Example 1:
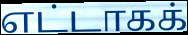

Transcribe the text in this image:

எட்டாகக்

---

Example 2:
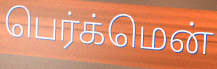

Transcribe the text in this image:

பெர்க்மென்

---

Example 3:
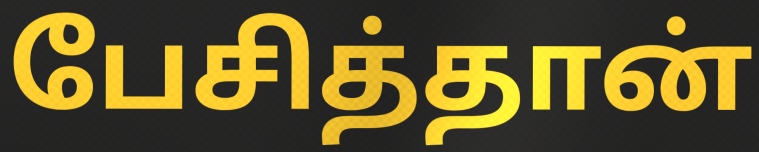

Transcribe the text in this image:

பேசித்தான்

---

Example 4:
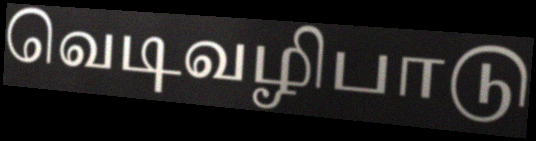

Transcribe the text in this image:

வெடிவழிபாடு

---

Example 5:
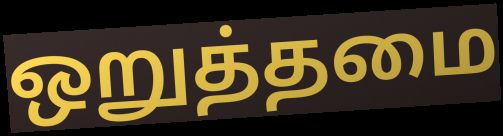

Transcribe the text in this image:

ஒறுத்தமை